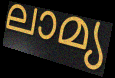
ലാമ്യ